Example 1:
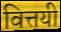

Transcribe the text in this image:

वित्तयी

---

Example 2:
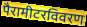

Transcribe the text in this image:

पैरामीटरविवरण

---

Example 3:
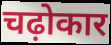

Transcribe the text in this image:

चढ़ोकार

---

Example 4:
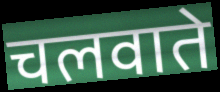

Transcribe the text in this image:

चलवाते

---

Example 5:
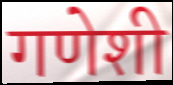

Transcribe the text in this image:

गणेशी